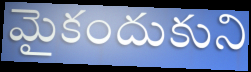
మైకందుకుని